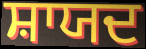
ਸ਼ਾਯਦ